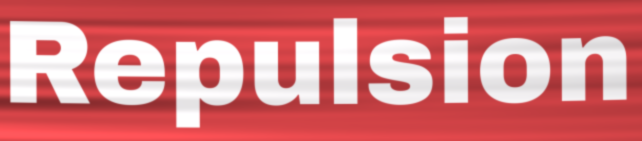
Repulsion